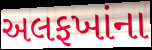
અલફખાંના